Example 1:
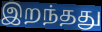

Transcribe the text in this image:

இறந்தது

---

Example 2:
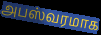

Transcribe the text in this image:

அபஸ்வரமாக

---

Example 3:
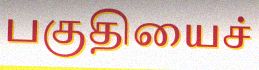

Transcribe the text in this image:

பகுதியைச்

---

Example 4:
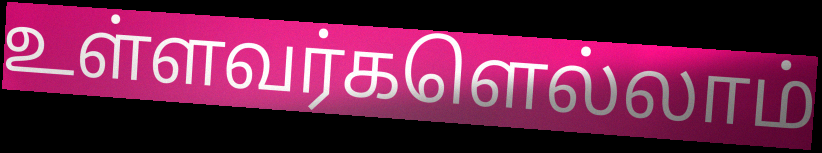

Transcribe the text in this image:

உள்ளவர்களெல்லாம்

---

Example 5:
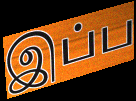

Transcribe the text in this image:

இப்ப